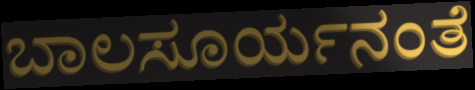
ಬಾಲಸೂರ್ಯನಂತೆ